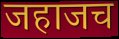
जहाजच